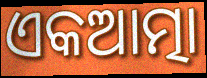
ଏକଆତ୍ମା